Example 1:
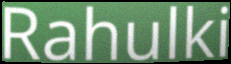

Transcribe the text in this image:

Rahulki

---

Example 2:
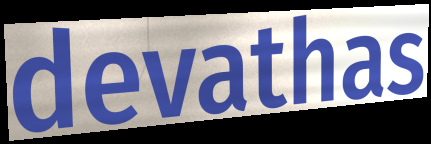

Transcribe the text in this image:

devathas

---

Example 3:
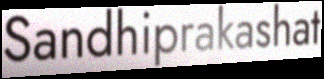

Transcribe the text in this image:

Sandhiprakashat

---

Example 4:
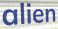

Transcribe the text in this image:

alien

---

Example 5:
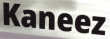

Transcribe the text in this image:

Kaneez